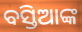
ବସ୍ତିଆଙ୍କ